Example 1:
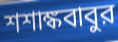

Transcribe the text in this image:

শশাঙ্কবাবুর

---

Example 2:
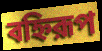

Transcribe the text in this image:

বহ্নিরূপ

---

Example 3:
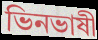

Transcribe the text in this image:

ভিনভাষী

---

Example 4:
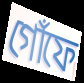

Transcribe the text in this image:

গোঁফে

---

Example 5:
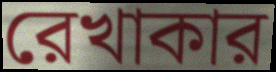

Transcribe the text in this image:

রেখাকার